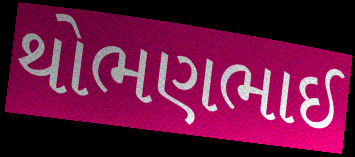
થોભણભાઈ